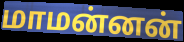
மாமன்னன்